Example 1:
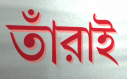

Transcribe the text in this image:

তাঁরাই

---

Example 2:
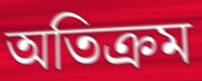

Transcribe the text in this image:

অতিক্রম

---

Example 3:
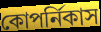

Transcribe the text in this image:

কোপর্নিকাস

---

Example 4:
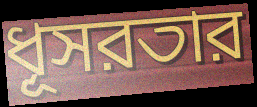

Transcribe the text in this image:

ধূসরতার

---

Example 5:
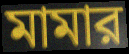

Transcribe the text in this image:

মামার